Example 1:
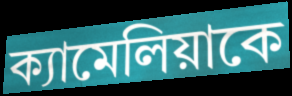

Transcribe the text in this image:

ক্যামেলিয়াকে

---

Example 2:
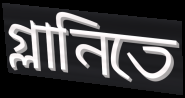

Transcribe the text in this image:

গ্লানিতে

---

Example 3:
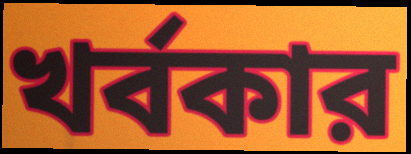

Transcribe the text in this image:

খর্বকার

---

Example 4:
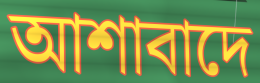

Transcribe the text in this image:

আশাবাদে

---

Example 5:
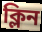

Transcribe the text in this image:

ক্লিন